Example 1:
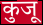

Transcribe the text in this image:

कुजू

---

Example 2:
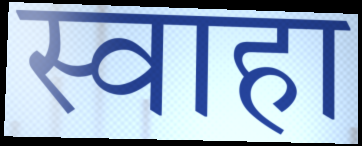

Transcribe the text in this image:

स्वाहा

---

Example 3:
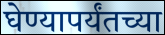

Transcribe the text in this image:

घेण्यापर्यंतच्या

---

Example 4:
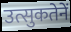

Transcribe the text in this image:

उत्सुकतेनें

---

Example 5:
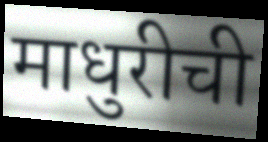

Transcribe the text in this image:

माधुरीची